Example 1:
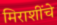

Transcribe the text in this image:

मिराशींचे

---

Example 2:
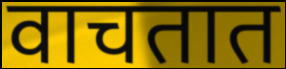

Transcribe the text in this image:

वाचतात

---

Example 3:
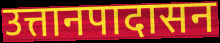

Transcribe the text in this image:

उत्तानपादासन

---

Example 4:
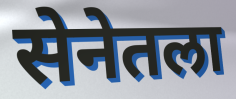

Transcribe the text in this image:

सेनेतला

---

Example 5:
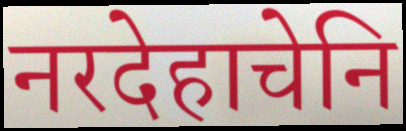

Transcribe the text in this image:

नरदेहाचेनि